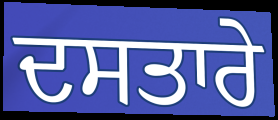
ਦਸਤਾਰੇ